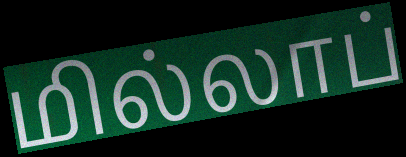
மில்லாப்